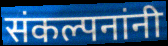
संकल्पनांनी